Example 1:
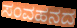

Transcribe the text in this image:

ಸಂವಹನದ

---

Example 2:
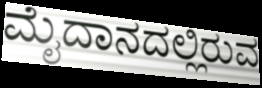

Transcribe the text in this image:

ಮೈದಾನದಲ್ಲಿರುವ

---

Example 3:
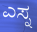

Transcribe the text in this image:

ಎಸ್ನ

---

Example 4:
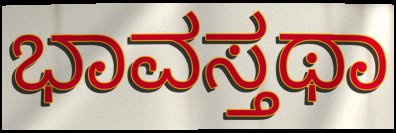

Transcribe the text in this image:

ಭಾವಸ್ತಥಾ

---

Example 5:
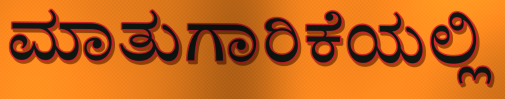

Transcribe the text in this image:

ಮಾತುಗಾರಿಕೆಯಲ್ಲಿ